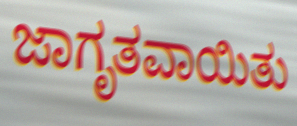
ಜಾಗೃತವಾಯಿತು